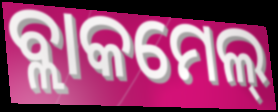
ବ୍ଲାକମେଲ୍